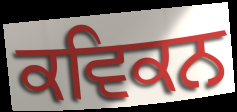
ਕਵਿਕਨ